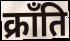
क्राँति